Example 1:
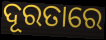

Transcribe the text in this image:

ଦୂରତାରେ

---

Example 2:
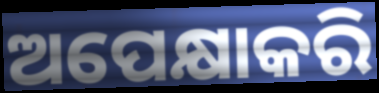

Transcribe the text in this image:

ଅପେକ୍ଷାକରି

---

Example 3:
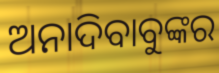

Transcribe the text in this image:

ଅନାଦିବାବୁଙ୍କର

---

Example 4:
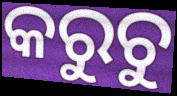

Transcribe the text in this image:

କରୁଚୁ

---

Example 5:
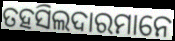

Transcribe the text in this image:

ତହସିଲଦାରମାନେ